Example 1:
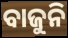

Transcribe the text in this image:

ବାଜୁନି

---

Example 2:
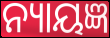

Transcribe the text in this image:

ନ୍ୟାୟଜ୍ଞ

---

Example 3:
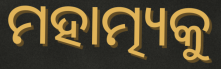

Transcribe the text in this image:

ମହାତ୍ମ୍ୟକୁ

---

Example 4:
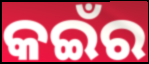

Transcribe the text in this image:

କଇଁର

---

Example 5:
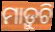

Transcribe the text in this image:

ମାଡ଼ୁଚି